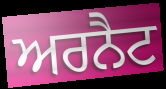
ਅਰਨੈਟ